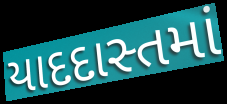
યાદદાસ્તમાં